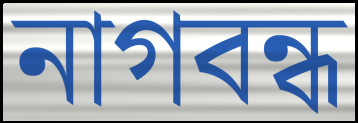
নাগবন্ধ